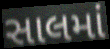
સાલમાં